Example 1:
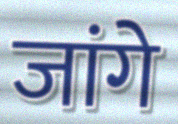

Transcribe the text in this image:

जांगे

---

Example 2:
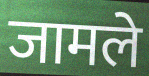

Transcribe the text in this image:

जामले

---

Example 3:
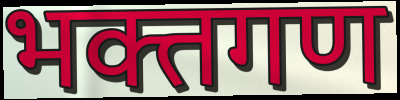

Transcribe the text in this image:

भक्तगण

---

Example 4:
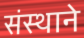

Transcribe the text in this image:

संस्थाने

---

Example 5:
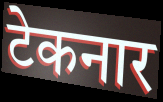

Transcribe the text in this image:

टेकनार